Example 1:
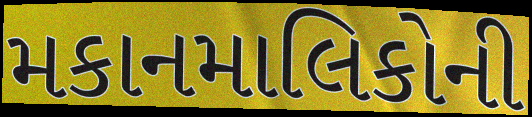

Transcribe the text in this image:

મકાનમાલિકોની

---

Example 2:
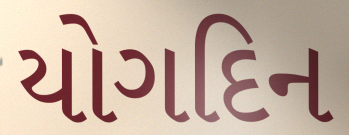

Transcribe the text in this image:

યોગદિન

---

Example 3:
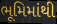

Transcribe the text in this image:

ભૂમિમાંથી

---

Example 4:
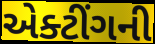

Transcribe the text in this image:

એક્ટીંગની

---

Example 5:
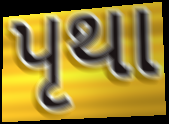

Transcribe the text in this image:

પૃથા